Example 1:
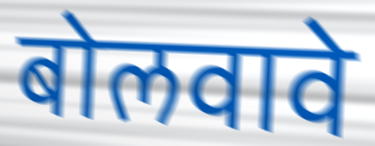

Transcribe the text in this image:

बोलवावे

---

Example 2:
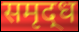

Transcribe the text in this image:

समृद्ध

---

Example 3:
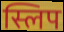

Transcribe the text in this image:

स्लिप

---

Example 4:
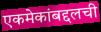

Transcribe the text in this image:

एकमेकांबद्दलची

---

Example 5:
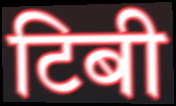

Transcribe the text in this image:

टिबी